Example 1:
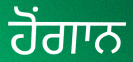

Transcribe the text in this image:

ਹੋਂਗਾਨ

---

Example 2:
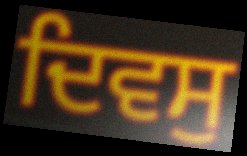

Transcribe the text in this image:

ਦਿਵਸੁ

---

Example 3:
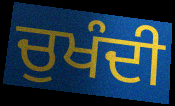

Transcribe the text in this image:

ਚੁਖੰਦੀ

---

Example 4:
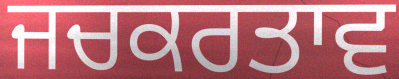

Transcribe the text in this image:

ਜਚਕਰਤਾਵ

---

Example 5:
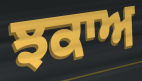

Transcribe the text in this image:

ਝਕਾਅ